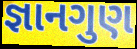
જ્ઞાનગુણ